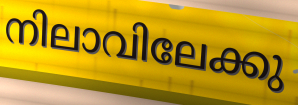
നിലാവിലേക്കു